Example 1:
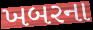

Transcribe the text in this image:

ખબરના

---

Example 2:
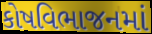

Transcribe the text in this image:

કોષવિભાજનમાં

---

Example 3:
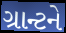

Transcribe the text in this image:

ગ્રાન્ટને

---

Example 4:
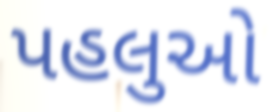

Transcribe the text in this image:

પહલુઓ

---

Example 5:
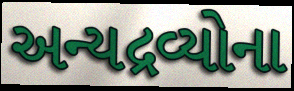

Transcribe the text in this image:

અન્યદ્રવ્યોના